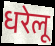
धरेलू